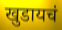
खुडायचं